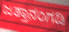
ಜತ್ತಾನಂಗಡಿ